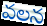
వలన